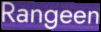
Rangeen